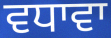
ਵਧਾਵਾ